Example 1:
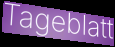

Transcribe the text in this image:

Tageblatt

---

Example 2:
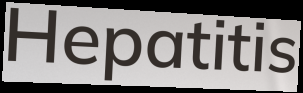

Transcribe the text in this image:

Hepatitis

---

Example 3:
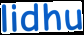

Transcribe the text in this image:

lidhu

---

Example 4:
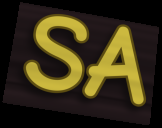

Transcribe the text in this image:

SA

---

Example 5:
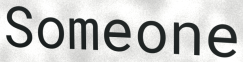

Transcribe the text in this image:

Someone